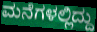
ಮನೆಗಳಲ್ಲಿದ್ದು